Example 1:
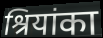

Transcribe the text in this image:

श्रियांका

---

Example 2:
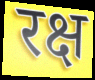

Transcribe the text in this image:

रक्ष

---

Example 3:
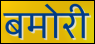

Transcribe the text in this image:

बमोरी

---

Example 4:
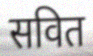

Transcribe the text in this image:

सवित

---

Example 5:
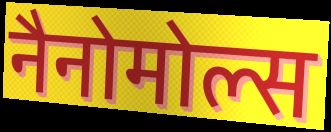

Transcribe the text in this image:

नैनोमोल्स